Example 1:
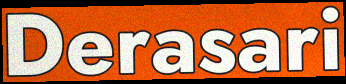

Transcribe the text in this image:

Derasari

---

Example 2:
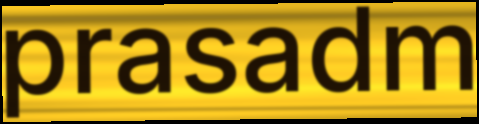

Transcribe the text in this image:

prasadm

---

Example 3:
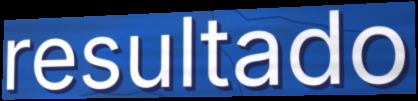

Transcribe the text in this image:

resultado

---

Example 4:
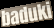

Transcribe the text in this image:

baduki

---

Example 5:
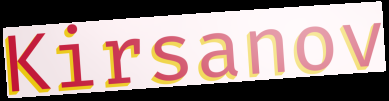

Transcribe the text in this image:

Kirsanov